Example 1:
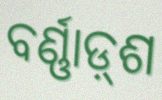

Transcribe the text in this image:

ବର୍ଣ୍ଣାଡ଼୍‌ଶ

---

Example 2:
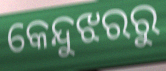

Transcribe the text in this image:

କେନ୍ଦୁଝରରୁ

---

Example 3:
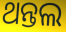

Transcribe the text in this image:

ଥନ୍ତଲ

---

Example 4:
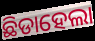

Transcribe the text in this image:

ଛିଡାହେଲା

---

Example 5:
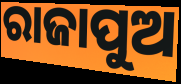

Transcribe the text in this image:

ରାଜାପୁଅ